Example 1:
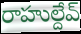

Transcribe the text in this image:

రాహుల్దేవ్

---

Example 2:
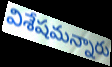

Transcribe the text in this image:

విశేషమన్నారు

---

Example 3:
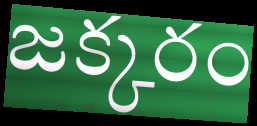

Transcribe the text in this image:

జక్కరం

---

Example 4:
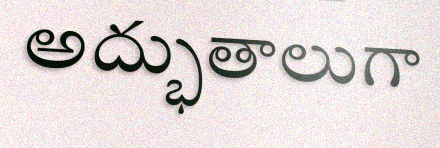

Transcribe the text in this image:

అద్భుతాలుగా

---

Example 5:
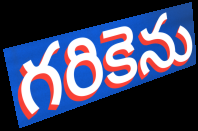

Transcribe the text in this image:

గరికెను